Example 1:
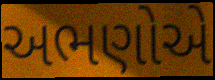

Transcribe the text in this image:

અભણોએ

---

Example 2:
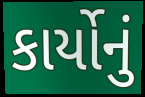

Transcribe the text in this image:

કાર્યોનું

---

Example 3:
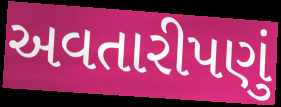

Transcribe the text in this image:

અવતારીપણું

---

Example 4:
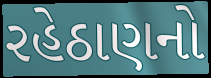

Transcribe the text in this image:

રહેઠાણનો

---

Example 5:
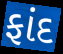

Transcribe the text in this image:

ફાંદ